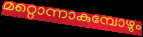
മറ്റൊന്നാകുമ്പോഴും